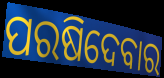
ପରଷିଦେବାର